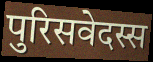
पुरिसवेदस्स